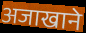
अजाखाने